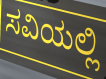
ಸವಿಯಲ್ಲಿ